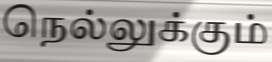
நெல்லுக்கும்